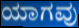
ಯಾಗವು